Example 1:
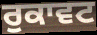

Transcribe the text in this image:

ਰੁਕਾਵਟ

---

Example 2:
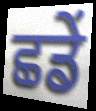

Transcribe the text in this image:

ਛਡੇਂ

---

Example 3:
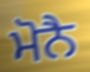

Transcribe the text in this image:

ਮੋਨੈ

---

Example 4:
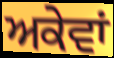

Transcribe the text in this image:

ਅਕੇਵਾਂ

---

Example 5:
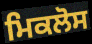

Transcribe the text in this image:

ਮਿਕਲੋਸ